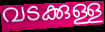
വടക്കുള്ള